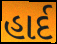
હાર્દ